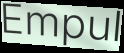
Empul